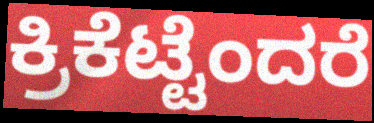
ಕ್ರಿಕೆಟ್ಟೆಂದರೆ